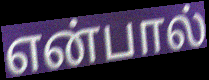
என்பால்